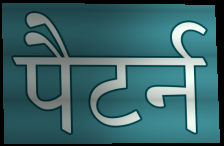
पैटर्न